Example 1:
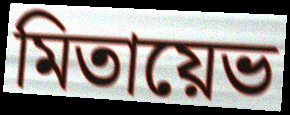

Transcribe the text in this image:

মিতায়েভ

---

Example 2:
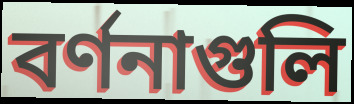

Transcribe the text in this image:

বর্ণনাগুলি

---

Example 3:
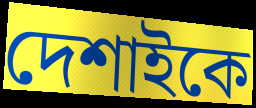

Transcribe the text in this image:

দেশাইকে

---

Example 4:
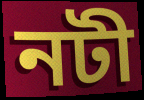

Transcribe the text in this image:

নটী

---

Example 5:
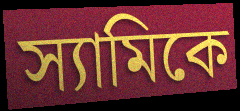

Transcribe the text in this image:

স্যামিকে